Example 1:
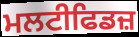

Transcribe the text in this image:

ਮਲਟੀਫਿਡਜ਼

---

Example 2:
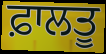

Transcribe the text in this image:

ਫ਼ਾਲਤੂ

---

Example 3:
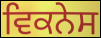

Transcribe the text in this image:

ਵਿਕਨੇਸ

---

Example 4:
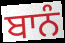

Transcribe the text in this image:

ਬਾਨੰ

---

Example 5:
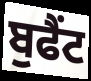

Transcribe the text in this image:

ਬੁਫੈਂਟ